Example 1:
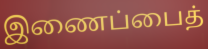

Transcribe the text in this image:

இணைப்பைத்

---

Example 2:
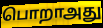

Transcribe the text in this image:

பொறாஅது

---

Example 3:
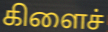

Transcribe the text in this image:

கிளைச்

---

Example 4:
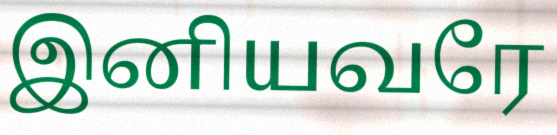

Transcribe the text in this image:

இனியவரே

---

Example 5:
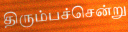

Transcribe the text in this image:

திரும்பச்சென்று